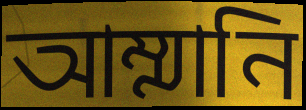
আম্মানি